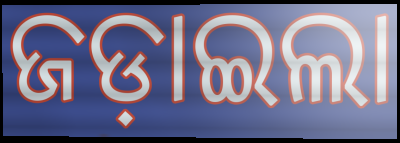
ଜଡ଼ାଇଲା